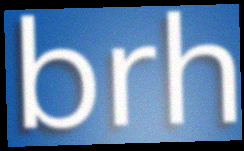
brh